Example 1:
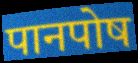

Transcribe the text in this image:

पानपोष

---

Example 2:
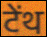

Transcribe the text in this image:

टेंथ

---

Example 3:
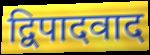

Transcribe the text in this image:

द्विपादवाद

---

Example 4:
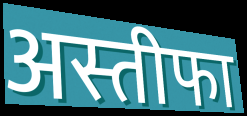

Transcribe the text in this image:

अस्तीफा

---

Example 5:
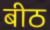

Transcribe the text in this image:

बीठ